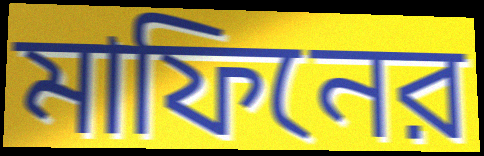
মাফিনের